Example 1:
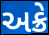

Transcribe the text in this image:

અક્રે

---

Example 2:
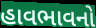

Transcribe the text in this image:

હાવભાવનો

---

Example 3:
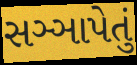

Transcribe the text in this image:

સઞ્ઞાપેતું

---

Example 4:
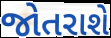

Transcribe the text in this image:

જોતરાશે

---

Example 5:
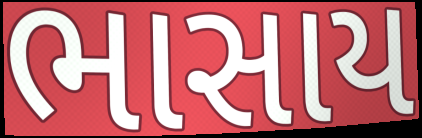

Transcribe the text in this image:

ભાસાય